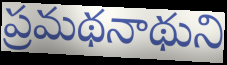
ప్రమథనాథుని